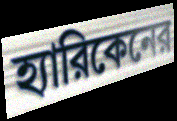
হ্যারিকেনের